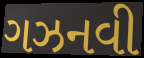
ગઝનવી